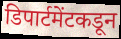
डिपार्टमेंटकडून